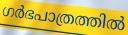
ഗർഭപാത്രത്തിൽ